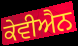
ਕੇਵੀਐਨ